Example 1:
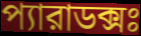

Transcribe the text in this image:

প্যারাডক্সঃ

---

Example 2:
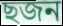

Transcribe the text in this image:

ছজন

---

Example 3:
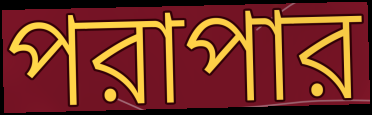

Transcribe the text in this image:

পরাপার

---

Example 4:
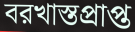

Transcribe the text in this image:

বরখাস্তপ্রাপ্ত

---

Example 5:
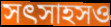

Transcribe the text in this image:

সৎসাহসও